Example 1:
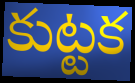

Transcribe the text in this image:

కుట్టక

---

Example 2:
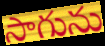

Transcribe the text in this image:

సాగును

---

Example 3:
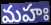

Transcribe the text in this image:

మహః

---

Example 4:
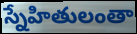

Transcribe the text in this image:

స్నేహితులంతా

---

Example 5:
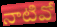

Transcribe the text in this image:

నాటివో